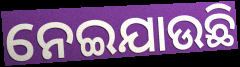
ନେଇଯାଉଛି